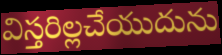
విస్తరిల్లచేయుదును